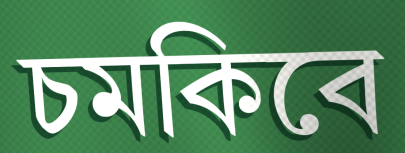
চমকিবে